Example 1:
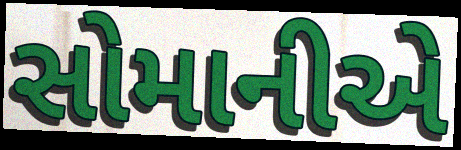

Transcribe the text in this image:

સોમાનીએ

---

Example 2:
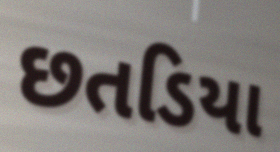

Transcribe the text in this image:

છતડિયા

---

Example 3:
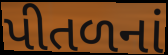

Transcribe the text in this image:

પીતળનાં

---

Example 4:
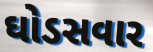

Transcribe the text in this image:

ઘોડસવાર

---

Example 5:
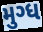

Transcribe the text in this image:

મુગ્ધ